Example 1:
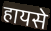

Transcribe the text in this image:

हायसे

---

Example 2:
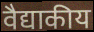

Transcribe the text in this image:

वैद्याकीय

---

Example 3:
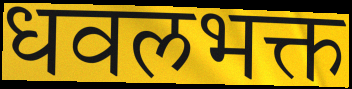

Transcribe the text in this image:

धवलभक्त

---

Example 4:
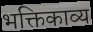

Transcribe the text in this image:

भक्तिकाव्य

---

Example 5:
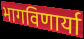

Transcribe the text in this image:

भागविणार्या